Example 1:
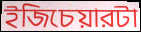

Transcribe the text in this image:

ইজিচেয়ারটা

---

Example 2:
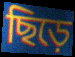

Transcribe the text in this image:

ছিড়ে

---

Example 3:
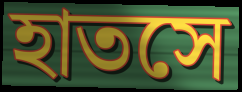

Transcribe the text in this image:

হাতসে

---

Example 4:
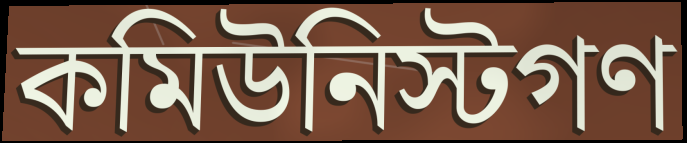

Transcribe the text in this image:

কমিউনিস্টগণ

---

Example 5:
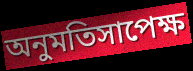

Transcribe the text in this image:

অনুমতিসাপেক্ষ